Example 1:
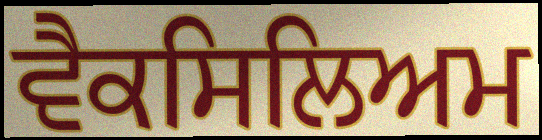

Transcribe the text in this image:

ਵੈਕਸਿਲਿਅਮ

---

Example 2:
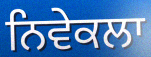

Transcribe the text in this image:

ਨਿਵੇਕਲਾ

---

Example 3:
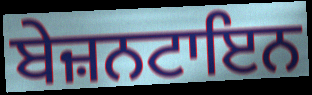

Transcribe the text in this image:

ਬੇਜ਼ਨਟਾਇਨ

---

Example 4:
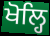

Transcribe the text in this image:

ਖੋਲ੍ਹਿ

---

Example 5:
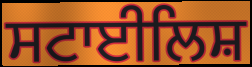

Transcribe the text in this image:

ਸਟਾਈਲਿਸ਼